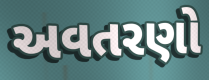
અવતરણો